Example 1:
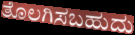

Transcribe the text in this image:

ತೊಲಗಿಸಬಹುದು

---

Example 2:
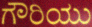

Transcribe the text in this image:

ಗೌರಿಯು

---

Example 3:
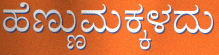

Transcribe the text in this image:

ಹೆಣ್ಣುಮಕ್ಕಳದು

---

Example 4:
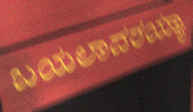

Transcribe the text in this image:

ಬಯಲಾದರಯ್ಯಾ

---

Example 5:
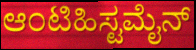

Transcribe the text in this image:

ಆಂಟಿಹಿಸ್ಟಮೈನ್